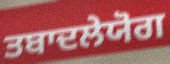
ਤਬਾਦਲੇਯੋਗ